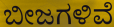
ಬೀಜಗಳಿವೆ